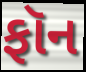
ફૉન